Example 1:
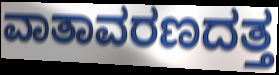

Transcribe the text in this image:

ವಾತಾವರಣದತ್ತ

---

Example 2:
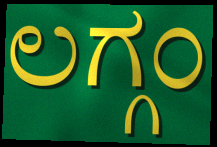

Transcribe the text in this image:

ಲಗ್ಗಂ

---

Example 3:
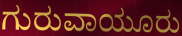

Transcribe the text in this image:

ಗುರುವಾಯೂರು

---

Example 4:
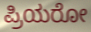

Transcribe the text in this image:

ಪ್ರಿಯರೋ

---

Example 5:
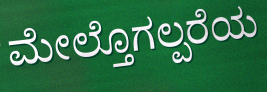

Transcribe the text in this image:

ಮೇಲ್ತೊಗಲ್ಪರೆಯ